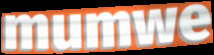
mumwe